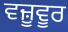
ਵਜ਼ੂਵੂਰ